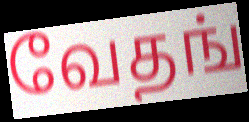
வேதங்